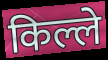
किल्ले